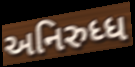
અનિરુધ્ધ